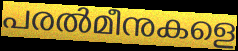
പരൽമീനുകളെ